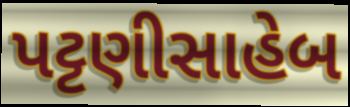
પટ્ટણીસાહેબ